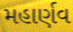
મહાર્ણવ